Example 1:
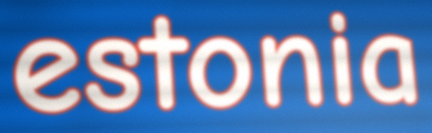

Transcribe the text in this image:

estonia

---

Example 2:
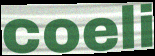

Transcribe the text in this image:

coeli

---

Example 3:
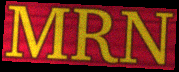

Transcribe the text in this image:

MRN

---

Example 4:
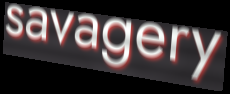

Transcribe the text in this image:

savagery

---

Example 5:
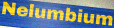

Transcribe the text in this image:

Nelumbium